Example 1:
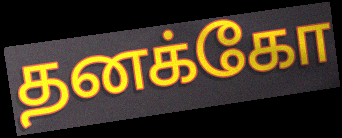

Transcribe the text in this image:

தனக்கோ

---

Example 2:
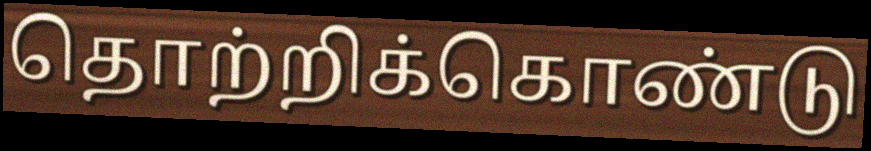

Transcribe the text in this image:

தொற்றிக்கொண்டு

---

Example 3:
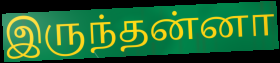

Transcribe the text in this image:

இருந்தன்னா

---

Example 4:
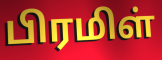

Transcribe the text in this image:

பிரமிள்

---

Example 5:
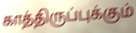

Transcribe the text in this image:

காத்திருப்புக்கும்